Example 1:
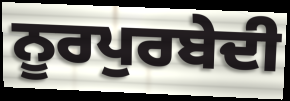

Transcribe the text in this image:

ਨੂਰਪੁਰਬੇਦੀ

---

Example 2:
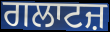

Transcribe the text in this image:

ਗਲਾਟਜ਼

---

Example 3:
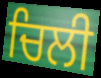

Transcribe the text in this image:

ਚਿਲੀ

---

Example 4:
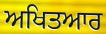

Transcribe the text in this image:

ਅਖਿਤਆਰ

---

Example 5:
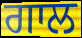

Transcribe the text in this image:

ਗਾਲ